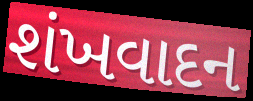
શંખવાદન